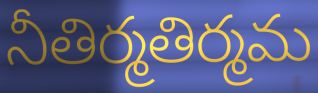
నీతిర్మతిర్మమ